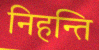
निहन्ति